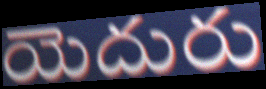
యెదురు